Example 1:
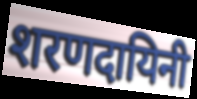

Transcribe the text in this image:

शरणदायिनी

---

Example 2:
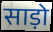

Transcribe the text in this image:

साड़ो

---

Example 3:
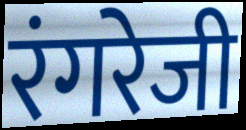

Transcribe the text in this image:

रंगरेजी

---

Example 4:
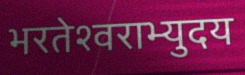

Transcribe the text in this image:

भरतेश्वराभ्युदय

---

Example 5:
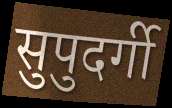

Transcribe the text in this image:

सुपुदर्गी